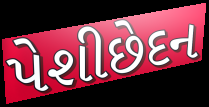
પેશીછેદન